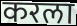
करला